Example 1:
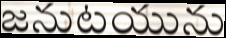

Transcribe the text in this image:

జనుటయును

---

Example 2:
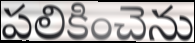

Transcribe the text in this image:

పలికించెను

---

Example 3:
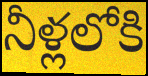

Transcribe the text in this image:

నీళ్లలోకి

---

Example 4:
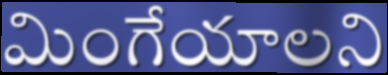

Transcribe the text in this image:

మింగేయాలని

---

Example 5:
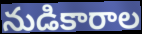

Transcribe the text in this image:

నుడికారాల